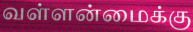
வள்ளன்மைக்கு